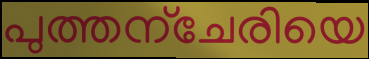
പുത്തന്ചേരിയെ